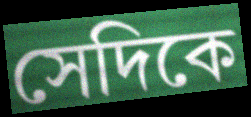
সেদিকে